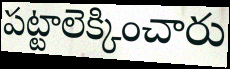
పట్టాలెక్కించారు